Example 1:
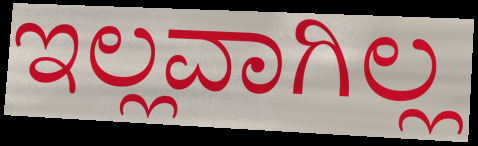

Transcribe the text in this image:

ಇಲ್ಲವಾಗಿಲ್ಲ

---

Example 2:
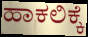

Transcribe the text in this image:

ಹಾಕಲಿಕ್ಕೆ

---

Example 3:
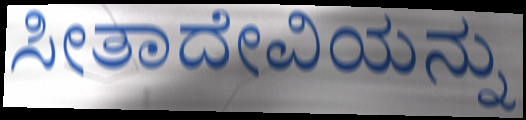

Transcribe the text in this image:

ಸೀತಾದೇವಿಯನ್ನು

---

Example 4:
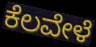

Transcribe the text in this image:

ಕೆಲವೇಳೆ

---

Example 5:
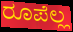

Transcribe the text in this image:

ರೂಪೆಲ್ಲ